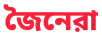
জৈনেরা